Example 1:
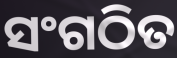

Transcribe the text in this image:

ସଂଗଠିତ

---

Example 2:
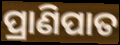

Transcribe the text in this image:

ପ୍ରାଣିପାତ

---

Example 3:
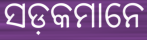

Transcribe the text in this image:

ସଡ଼କମାନେ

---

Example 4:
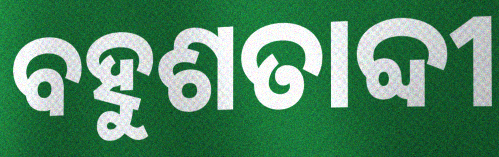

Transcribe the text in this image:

ବହୁଶତାବ୍ଦୀ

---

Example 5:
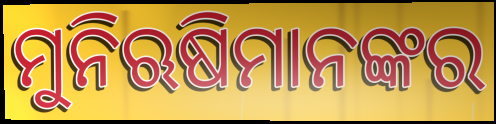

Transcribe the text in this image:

ମୁନିଋଷିମାନଙ୍କର